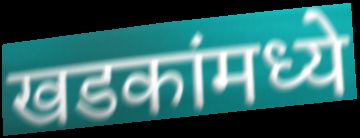
खडकांमध्ये